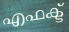
എഫക്ട്